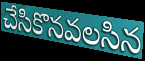
చేసికొనవలసిన